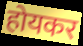
होयकर